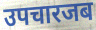
उपचारजब